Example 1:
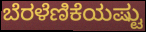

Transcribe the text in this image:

ಬೆರಳೆಣಿಕೆಯಷ್ಟು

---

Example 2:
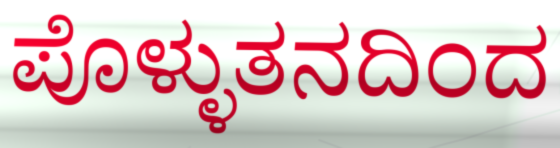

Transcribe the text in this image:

ಪೊಳ್ಳುತನದಿಂದ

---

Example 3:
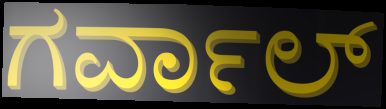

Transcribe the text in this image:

ಗರ್ವಾಲ್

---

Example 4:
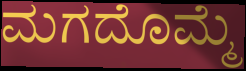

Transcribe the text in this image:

ಮಗದೊಮ್ಮೆ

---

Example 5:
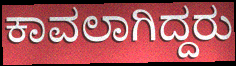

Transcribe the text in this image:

ಕಾವಲಾಗಿದ್ದರು